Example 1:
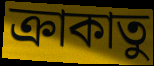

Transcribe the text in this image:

ক্রাকাতু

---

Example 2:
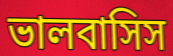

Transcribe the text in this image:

ভালবাসিস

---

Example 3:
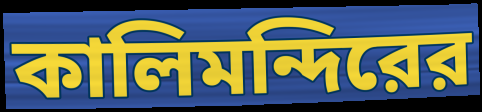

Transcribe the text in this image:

কালিমন্দিরের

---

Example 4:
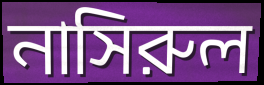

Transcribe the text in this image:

নাসিরুল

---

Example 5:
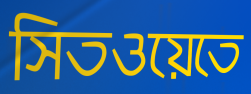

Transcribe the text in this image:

সিতওয়েতে